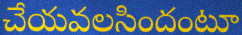
చేయవలసిందంటూ